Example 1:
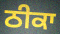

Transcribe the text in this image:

ਠੀਕਾ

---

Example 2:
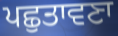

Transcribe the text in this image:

ਪਛੁਤਾਵਣਾ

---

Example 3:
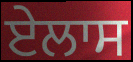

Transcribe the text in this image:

ਏਲਾਸ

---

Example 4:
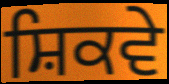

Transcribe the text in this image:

ਸ਼ਿਕਵੇ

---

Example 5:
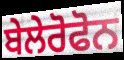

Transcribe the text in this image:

ਬੇਲੇਰੋਫੋਨ